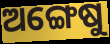
ଅଙ୍ଗେଷୁ